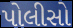
પોલીસો